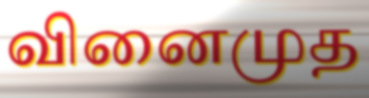
வினைமுத